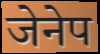
जेनेप